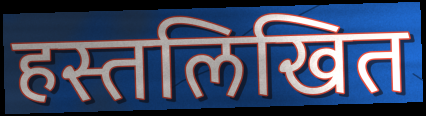
हस्तलिखित